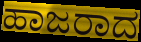
ಹಾಜರಾದ